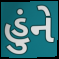
હુંને